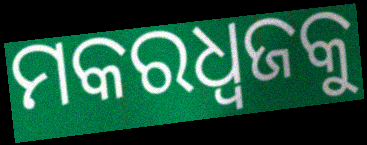
ମକରଧ୍ୱଜକୁ